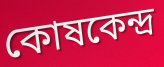
কোষকেন্দ্ৰ